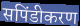
सपिंडीकरण